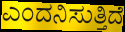
ಎಂದನಿಸುತ್ತಿದೆ